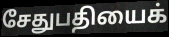
சேதுபதியைக்